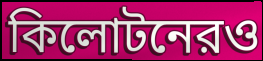
কিলোটনেরও